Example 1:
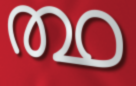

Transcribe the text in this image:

ത്ഥ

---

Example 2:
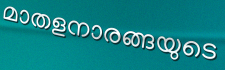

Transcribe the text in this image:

മാതളനാരങ്ങയുടെ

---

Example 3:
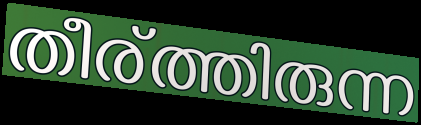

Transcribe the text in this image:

തീര്ത്തിരുന്ന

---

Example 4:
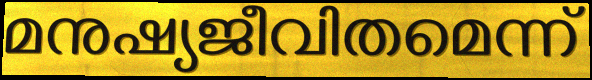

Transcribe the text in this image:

മനുഷ്യജീവിതമെന്ന്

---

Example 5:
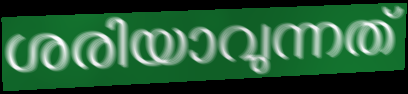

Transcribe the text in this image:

ശരിയാവുന്നത്